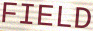
FIELD